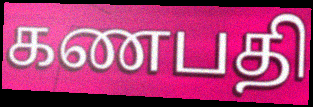
கணபதி